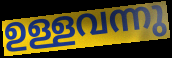
ഉള്ളവന്നു